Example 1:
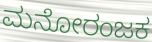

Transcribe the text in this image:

ಮನೋರಂಜಕ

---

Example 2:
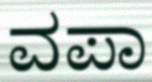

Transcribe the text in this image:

ವಪಾ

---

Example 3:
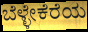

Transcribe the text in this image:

ಬೆಳ್ಳೇಕೆರೆಯ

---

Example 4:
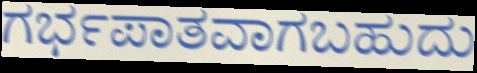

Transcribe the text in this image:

ಗರ್ಭಪಾತವಾಗಬಹುದು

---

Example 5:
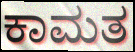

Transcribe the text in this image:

ಕಾಮತ